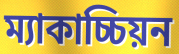
ম্যাকাচ্চিয়ন